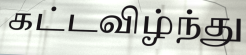
கட்டவிழ்ந்து